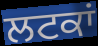
ਲਟਕਾਂ